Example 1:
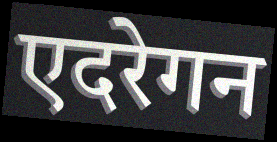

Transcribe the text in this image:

एदरेगन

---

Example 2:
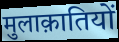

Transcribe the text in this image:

मुलाक़ातियों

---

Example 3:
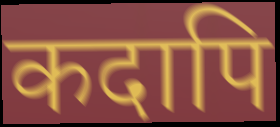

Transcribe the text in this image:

कदापि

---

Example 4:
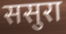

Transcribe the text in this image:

ससुरा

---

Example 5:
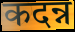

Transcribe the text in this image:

कदन्न